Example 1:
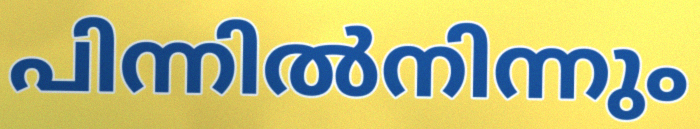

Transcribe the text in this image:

പിന്നിൽനിന്നും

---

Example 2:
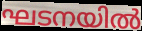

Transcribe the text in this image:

ഘടനയിൽ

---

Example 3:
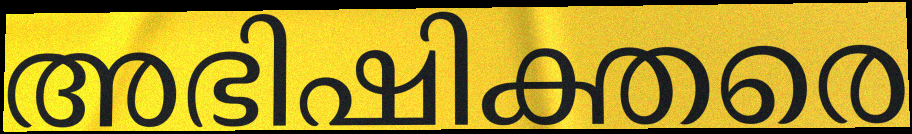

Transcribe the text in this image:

അഭിഷിക്തരെ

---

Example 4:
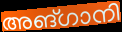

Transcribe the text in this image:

അങ്ഗാനി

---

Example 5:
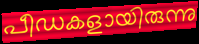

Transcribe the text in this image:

പീഡകളായിരുന്നു